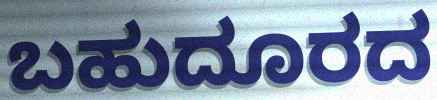
ಬಹುದೂರದ